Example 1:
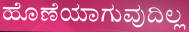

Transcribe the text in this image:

ಹೊಣೆಯಾಗುವುದಿಲ್ಲ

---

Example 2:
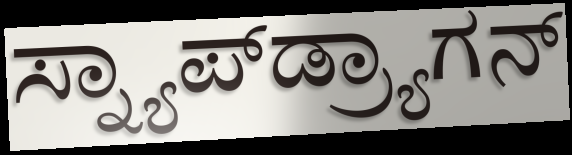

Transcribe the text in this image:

ಸ್ನ್ಯಾಪ್‌ಡ್ರ್ಯಾಗನ್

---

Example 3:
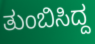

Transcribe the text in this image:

ತುಂಬಿಸಿದ್ದ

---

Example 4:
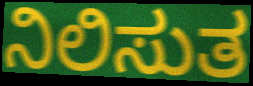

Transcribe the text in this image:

ನಿಲಿಸುತ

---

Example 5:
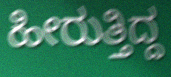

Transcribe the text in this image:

ಹೀರುತ್ತಿದ್ದ